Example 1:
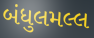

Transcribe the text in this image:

બંધુલમલ્લ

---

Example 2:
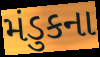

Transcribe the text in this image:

મંડુકના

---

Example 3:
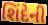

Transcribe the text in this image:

શિંદેની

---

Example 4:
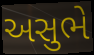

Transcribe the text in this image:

અસુભે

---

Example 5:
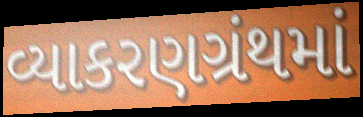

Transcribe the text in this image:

વ્યાકરણગ્રંથમાં